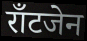
राँटजेन